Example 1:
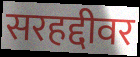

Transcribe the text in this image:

सरहद्दीवर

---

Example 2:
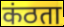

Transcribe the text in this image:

कंठता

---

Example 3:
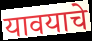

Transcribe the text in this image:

यावयाचे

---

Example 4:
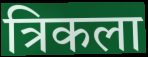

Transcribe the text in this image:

त्रिकला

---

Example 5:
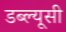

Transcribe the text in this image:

डब्ल्यूसी